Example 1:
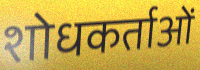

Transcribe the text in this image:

शोधकर्ताओं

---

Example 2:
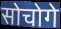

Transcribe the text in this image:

सोचोगे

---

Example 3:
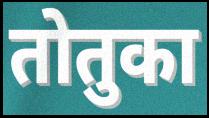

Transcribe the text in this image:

तोतुका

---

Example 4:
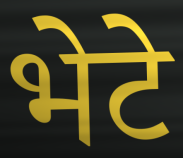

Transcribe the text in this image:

भेटे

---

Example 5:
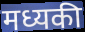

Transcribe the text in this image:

मध्यकी